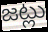
జట్లు